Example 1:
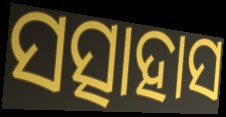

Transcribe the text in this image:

ସତ୍ସାହାସ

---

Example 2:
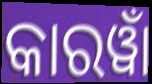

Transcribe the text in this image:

କାରୱାଁ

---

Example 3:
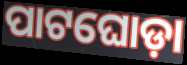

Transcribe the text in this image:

ପାଟଘୋଡ଼ା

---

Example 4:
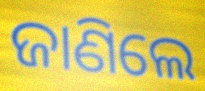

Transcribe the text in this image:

ଜାଣିଲେ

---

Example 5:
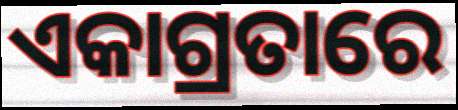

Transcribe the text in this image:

ଏକାଗ୍ରତାରେ